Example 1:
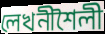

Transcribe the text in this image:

লেখনীশৈলী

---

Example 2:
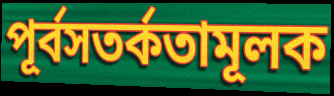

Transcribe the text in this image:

পূর্বসতর্কতামূলক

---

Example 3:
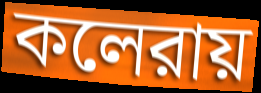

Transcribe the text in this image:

কলেরায়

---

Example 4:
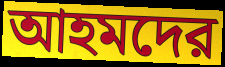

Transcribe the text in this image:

আহমদের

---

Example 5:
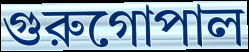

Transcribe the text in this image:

গুরুগোপাল